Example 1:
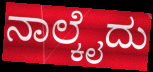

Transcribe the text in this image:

ನಾಲ್ಕೈದು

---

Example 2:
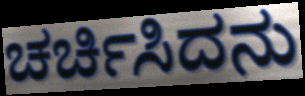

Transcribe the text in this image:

ಚರ್ಚಿಸಿದನು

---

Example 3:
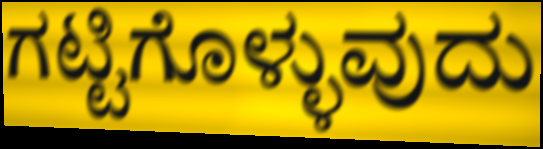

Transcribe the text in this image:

ಗಟ್ಟಿಗೊಳ್ಳುವುದು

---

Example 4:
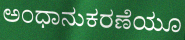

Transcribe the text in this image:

ಅಂಧಾನುಕರಣೆಯೂ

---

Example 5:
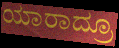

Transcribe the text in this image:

ಯಾರಾದ್ರೂ